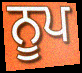
ਨੂਪ